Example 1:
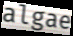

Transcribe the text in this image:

algae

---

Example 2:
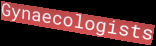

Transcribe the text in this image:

Gynaecologists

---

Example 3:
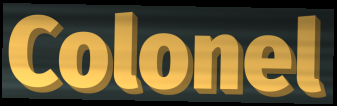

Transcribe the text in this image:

Colonel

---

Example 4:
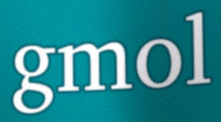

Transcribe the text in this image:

gmol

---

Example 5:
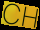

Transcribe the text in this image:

CH